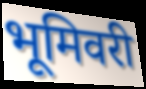
भूमिवरी